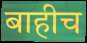
बाहीच